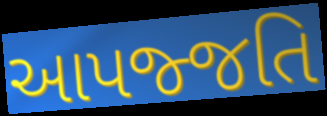
આપજ્જતિ